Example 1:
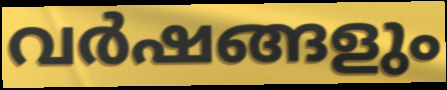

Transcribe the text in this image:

വർഷങ്ങളും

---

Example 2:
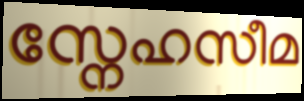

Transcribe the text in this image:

സ്നേഹസീമ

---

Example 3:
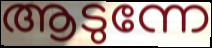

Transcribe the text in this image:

ആടുന്നേ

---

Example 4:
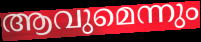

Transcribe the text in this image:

ആവുമെന്നും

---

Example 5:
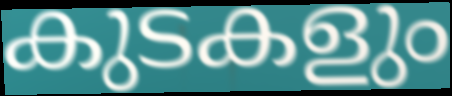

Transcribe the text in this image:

കുടകളും